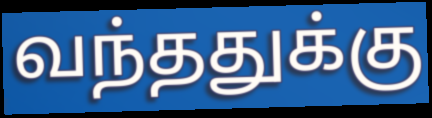
வந்ததுக்கு